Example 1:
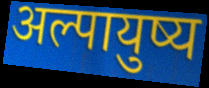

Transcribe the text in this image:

अल्पायुष्य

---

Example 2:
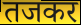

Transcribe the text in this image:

तजकर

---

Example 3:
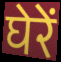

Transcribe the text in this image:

घेरें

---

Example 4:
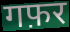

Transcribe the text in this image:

गफ़र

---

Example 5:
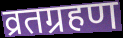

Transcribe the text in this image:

व्रतग्रहण